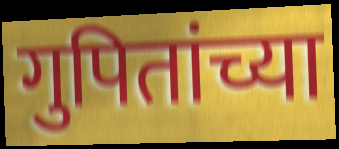
गुपितांच्या